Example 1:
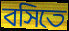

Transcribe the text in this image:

বসিতে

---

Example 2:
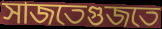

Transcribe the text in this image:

সাজতেগুজতে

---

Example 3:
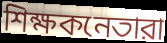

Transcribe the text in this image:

শিক্ষকনেতারা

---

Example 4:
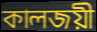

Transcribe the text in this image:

কালজয়ী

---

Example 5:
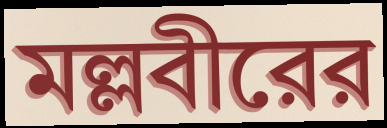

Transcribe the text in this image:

মল্লবীরের